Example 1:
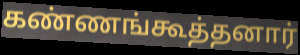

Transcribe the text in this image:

கண்ணங்கூத்தனார்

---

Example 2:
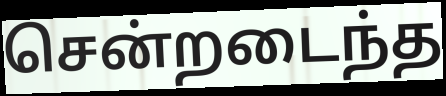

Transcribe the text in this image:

சென்றடைந்த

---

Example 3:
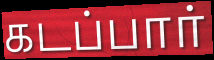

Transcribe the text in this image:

கடப்பார்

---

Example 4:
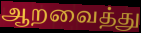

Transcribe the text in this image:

ஆறவைத்து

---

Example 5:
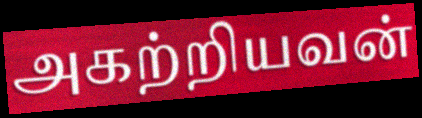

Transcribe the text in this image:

அகற்றியவன்